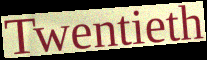
Twentieth